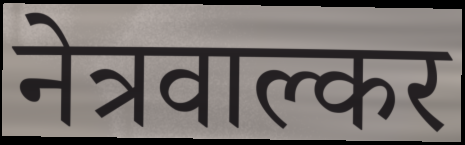
नेत्रवाल्कर